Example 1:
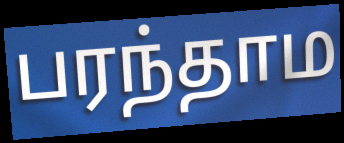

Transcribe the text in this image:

பரந்தாம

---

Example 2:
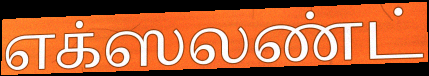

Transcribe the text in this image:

எக்ஸலண்ட்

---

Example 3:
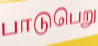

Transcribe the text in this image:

பாடுபெறு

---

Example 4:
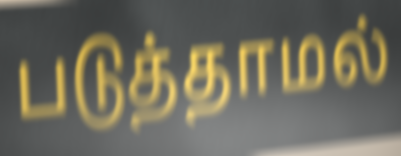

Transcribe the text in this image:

படுத்தாமல்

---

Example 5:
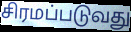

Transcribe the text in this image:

சிரமப்படுவது